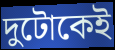
দুটোকেই